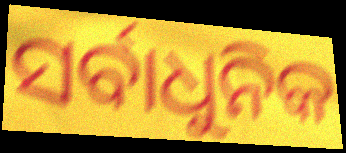
ସର୍ବାଧୁନିକ